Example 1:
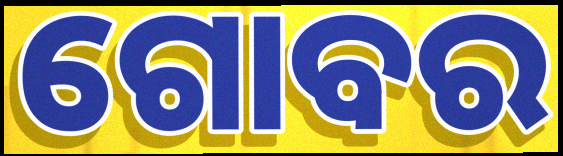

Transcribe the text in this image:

ଗୋବର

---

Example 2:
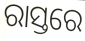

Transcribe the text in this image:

ରାସ୍ତରେ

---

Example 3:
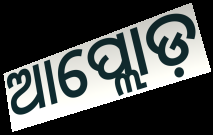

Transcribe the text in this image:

ଆପ୍ଲୋଡ଼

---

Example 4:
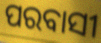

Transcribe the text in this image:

ପରବାସୀ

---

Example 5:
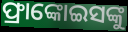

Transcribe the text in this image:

ଫ୍ରାଙ୍କୋଇସଙ୍କୁ